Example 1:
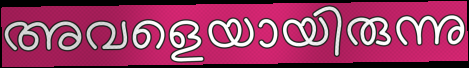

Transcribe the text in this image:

അവളെയായിരുന്നു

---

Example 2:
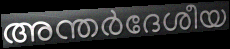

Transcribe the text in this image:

അന്തർദേശീയ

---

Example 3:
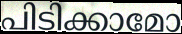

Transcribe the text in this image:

പിടിക്കാമോ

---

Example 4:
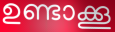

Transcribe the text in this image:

ഉണ്ടാക്കൂ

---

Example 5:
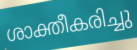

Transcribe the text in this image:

ശാക്തീകരിച്ചു